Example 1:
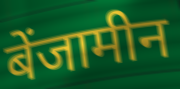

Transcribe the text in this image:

बेंजामीन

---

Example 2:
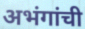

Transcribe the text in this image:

अभंगांची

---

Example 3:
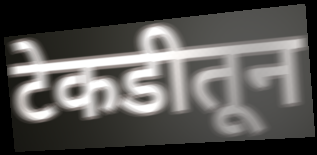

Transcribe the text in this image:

टेकडीतून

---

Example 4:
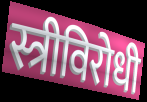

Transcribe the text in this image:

स्त्रीविरोधी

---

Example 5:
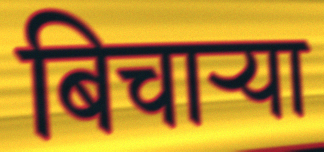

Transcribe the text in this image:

बिचाऱ्या